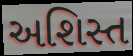
અશિસ્ત